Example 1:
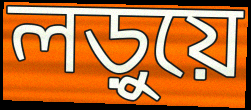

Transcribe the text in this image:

লড়ুয়ে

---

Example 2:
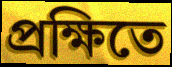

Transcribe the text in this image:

প্রক্ষিতে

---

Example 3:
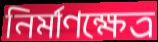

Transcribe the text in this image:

নির্মাণক্ষেত্র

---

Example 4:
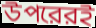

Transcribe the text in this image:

উপরেরই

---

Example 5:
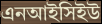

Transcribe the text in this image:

এনআইসিইউ